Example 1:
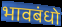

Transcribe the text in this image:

भावबंधो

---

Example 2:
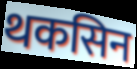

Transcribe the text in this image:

थकसिन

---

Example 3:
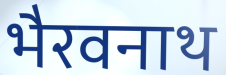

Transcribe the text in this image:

भैरवनाथ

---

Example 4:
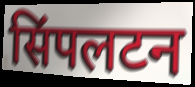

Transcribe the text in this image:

सिंपलटन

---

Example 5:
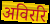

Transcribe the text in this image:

अविररि